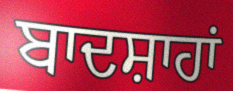
ਬਾਦਸ਼ਾਹਾਂ